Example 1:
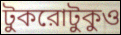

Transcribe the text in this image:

টুকরোটুকুও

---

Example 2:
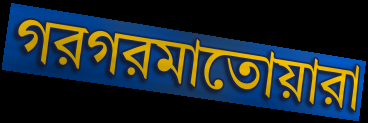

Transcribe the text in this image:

গরগরমাতোয়ারা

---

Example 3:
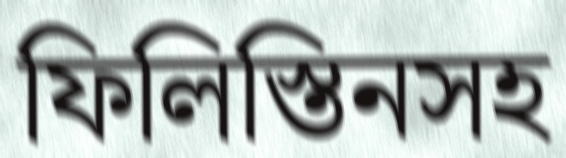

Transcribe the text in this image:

ফিলিস্তিনসহ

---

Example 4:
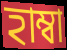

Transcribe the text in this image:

হাম্বা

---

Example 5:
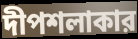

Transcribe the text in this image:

দীপশলাকার